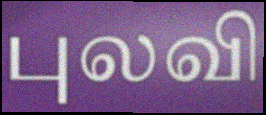
புலவி